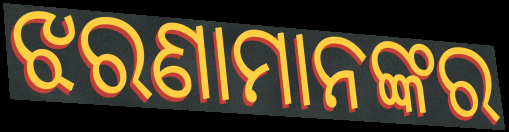
ଝରଣାମାନଙ୍କର